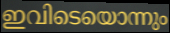
ഇവിടെയൊന്നും